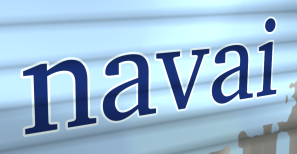
navai